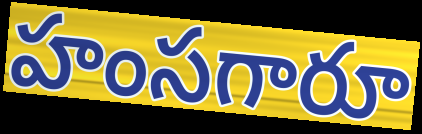
హంసగారూ